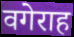
वगेराह